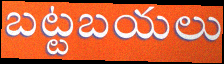
బట్టబయలు